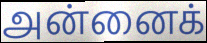
அன்னைக்